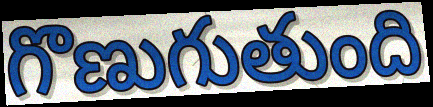
గొణుగుతుంది